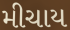
મીચાય